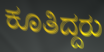
ಕೂತಿದ್ದರು